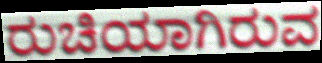
ರುಚಿಯಾಗಿರುವ